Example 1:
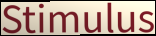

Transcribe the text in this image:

Stimulus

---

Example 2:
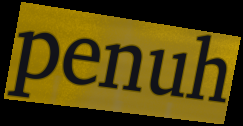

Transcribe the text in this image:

penuh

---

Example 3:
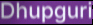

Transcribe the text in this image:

Dhupguri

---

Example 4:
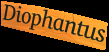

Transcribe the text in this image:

Diophantus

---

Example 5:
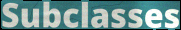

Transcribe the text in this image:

Subclasses